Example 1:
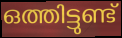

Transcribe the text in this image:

ഒത്തിട്ടുണ്ട്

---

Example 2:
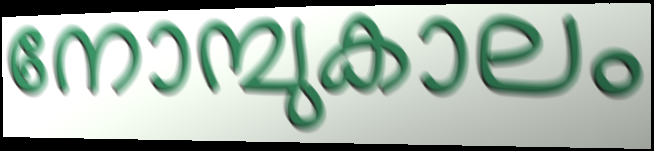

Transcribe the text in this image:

നോമ്പുകാലം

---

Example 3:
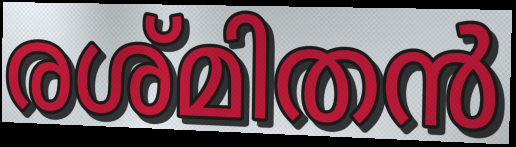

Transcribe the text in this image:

രശ്മിതൻ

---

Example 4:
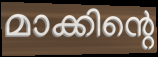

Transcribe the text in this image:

മാക്കിന്റെ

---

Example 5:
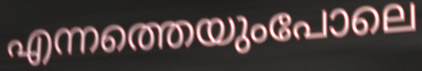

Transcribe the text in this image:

എന്നത്തെയുംപോലെ